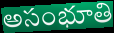
అసంభూతి